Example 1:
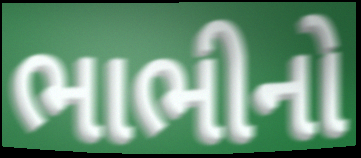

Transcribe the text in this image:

ભાભીનો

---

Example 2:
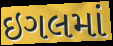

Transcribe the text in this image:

ઇગલમાં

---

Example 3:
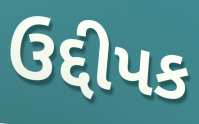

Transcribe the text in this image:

ઉદ્દીપક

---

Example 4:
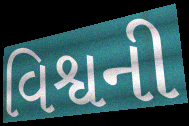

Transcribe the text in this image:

વિશ્વની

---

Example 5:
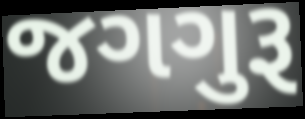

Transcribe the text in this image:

જગગુરૂ